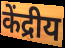
केंद्रीय